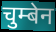
चुम्बेन